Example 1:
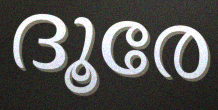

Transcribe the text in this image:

ദൂരേ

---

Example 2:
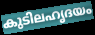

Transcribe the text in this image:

കുടിലഹൃദയം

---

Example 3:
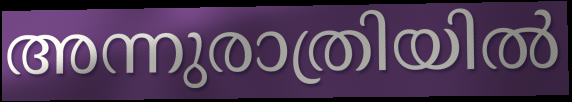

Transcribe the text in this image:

അന്നുരാത്രിയിൽ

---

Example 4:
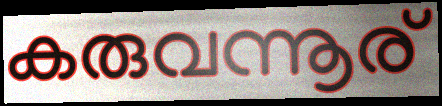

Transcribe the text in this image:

കരുവന്നൂര്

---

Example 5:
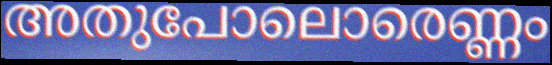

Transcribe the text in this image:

അതുപോലൊരെണ്ണം